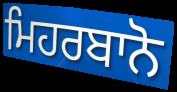
ਮਿਹਰਬਾਨੋ